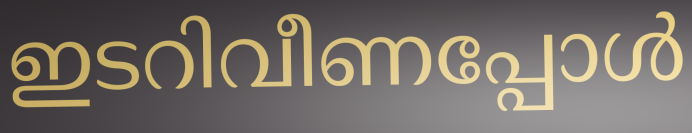
ഇടറിവീണപ്പോൾ